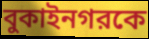
বুকাইনগরকে